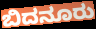
ಬಿದನೂರು